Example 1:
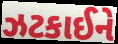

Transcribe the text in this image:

ઝટકાઈને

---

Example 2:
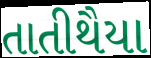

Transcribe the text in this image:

તાતીથૈયા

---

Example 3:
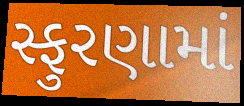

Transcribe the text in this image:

સ્ફુરણામાં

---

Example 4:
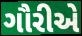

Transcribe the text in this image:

ગૌરીએ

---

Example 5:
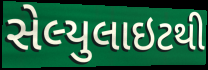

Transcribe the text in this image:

સેલ્યુલાઇટથી